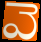
వె